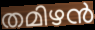
തമിഴൻ